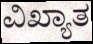
ವಿಖ್ಯಾತ